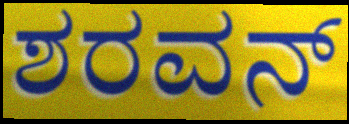
ಶರವನ್